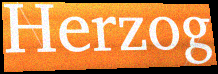
Herzog